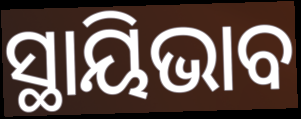
ସ୍ଥାୟିଭାବ